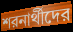
শরনার্থীদের